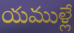
యముళ్లే